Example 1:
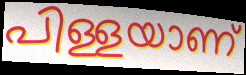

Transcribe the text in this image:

പിള്ളയാണ്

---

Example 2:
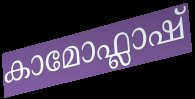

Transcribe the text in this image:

കാമോഫ്ലാഷ്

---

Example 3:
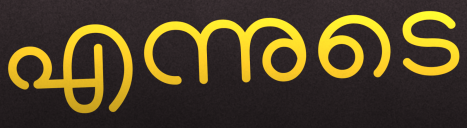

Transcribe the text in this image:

എന്നുടെ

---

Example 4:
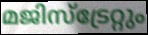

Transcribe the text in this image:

മജിസ്ട്രേറ്റും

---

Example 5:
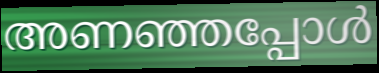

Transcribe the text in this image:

അണഞ്ഞപ്പോൾ